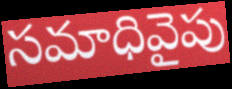
సమాధివైపు